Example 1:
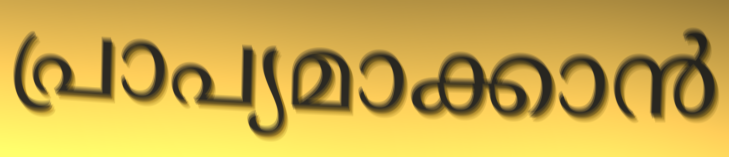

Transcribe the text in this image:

പ്രാപ്യമാക്കാൻ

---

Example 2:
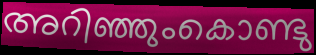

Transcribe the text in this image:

അറിഞ്ഞുംകൊണ്ടു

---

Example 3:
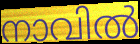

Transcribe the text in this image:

നാവിൽ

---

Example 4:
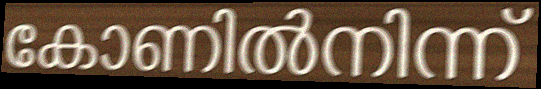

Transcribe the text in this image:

കോണിൽനിന്ന്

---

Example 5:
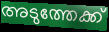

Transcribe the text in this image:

അടുത്തേക്ക്